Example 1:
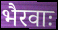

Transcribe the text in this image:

भैरवाः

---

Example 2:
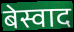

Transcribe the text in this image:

बेस्वाद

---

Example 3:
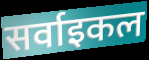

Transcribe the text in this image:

सर्वाइकल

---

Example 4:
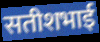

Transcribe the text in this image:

सतीशभाई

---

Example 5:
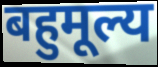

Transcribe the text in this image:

बहुमूल्य